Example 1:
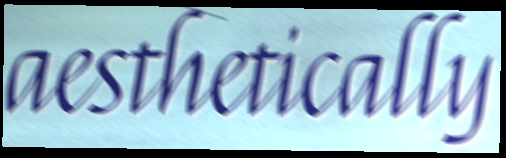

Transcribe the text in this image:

aesthetically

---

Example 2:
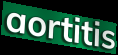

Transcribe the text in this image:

aortitis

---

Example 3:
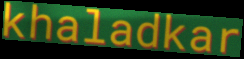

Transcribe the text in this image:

khaladkar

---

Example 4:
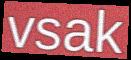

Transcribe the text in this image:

vsak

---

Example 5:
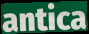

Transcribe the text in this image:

antica